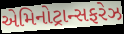
એમિનોટ્રાન્સફરેઝ